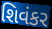
શિવંકર